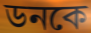
ডনকে